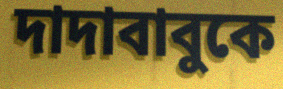
দাদাবাবুকে